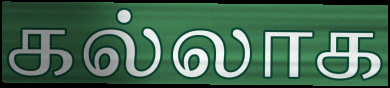
கல்லாக